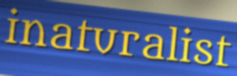
inaturalist